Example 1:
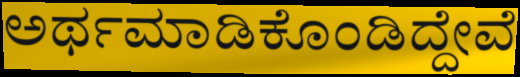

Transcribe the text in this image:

ಅರ್ಥಮಾಡಿಕೊಂಡಿದ್ದೇವೆ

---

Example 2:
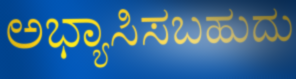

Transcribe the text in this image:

ಅಭ್ಯಾಸಿಸಬಹುದು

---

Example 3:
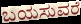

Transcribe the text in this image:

ಬಯಸುವರೆ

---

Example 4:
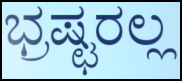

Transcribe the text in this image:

ಭ್ರಷ್ಟರಲ್ಲ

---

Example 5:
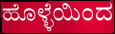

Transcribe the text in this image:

ಹೊಳ್ಳೆಯಿಂದ